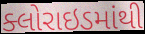
ક્લોરાઇડમાંથી